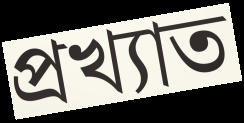
প্ৰখ্যাত